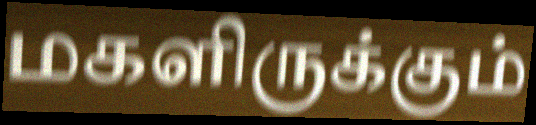
மகளிருக்கும்